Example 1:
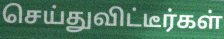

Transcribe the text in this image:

செய்துவிட்டீர்கள்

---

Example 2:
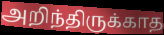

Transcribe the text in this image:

அறிந்திருக்காத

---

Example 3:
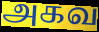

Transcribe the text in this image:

அகவ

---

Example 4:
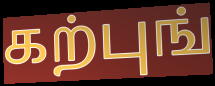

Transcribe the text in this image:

கற்புங்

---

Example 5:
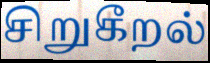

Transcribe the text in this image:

சிறுகீறல்